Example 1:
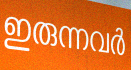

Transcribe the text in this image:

ഇരുന്നവർ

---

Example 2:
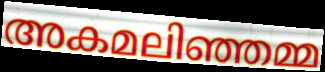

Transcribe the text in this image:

അകമലിഞ്ഞമ്മ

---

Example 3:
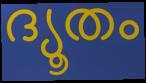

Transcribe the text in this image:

ദ്യൂതം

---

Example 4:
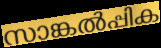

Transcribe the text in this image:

സാങ്കൽപ്പിക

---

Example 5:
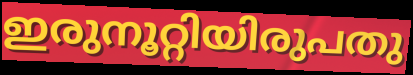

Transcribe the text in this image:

ഇരുനൂറ്റിയിരുപതു